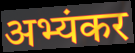
अभ्यंकर